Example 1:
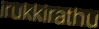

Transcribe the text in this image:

irukkirathu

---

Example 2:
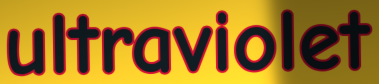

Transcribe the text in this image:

ultraviolet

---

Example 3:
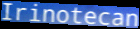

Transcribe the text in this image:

Irinotecan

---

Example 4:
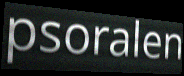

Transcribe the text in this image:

psoralen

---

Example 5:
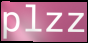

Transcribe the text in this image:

plzz